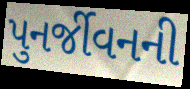
પુનર્જીવનની